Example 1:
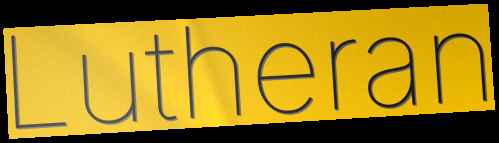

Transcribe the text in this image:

Lutheran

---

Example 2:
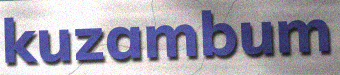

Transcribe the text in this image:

kuzambum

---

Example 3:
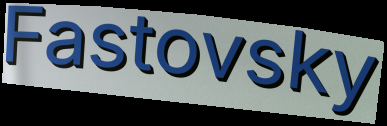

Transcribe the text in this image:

Fastovsky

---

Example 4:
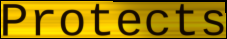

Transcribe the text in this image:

Protects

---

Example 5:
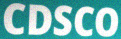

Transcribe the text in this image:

CDSCO